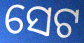
ସେଟ